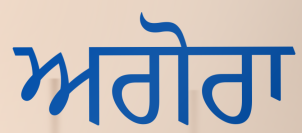
ਅਗੋਰਾ